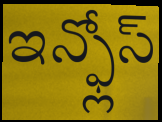
ఇన్ఫ్లోస్